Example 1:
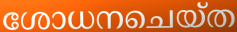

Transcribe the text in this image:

ശോധനചെയ്ത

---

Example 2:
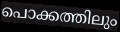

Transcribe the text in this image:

പൊക്കത്തിലും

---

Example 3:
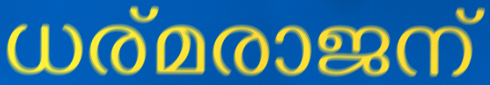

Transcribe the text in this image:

ധര്മരാജന്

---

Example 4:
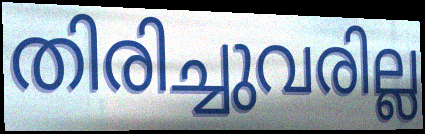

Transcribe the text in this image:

തിരിച്ചുവരില്ല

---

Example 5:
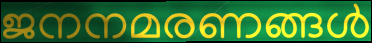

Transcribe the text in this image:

ജനനമരണങ്ങൾ